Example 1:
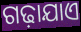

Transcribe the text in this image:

ଗଢ଼ାଯାଏ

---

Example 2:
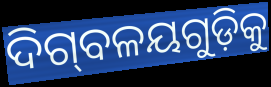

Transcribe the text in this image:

ଦିଗ୍‌ବଳୟଗୁଡ଼ିକୁ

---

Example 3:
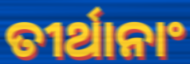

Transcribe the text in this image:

ତୀର୍ଥାନାଂ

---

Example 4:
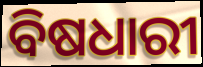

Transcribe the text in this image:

ବିଷଧାରୀ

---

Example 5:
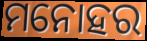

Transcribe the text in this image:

ମନୋହର